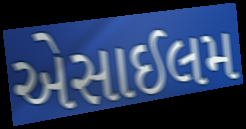
એસાઈલમ